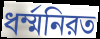
ধর্ম্মনিরত